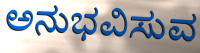
ಅನುಭವಿಸುವ